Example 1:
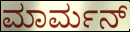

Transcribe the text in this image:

ಮಾರ್ಮನ್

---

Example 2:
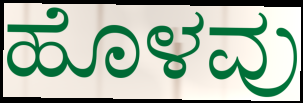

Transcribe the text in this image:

ಹೊಳವು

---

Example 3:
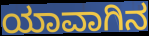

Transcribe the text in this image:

ಯಾವಾಗಿನ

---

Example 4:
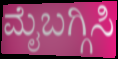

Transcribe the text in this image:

ಮೈಬಗ್ಗಿಸಿ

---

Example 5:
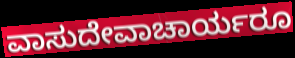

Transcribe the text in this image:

ವಾಸುದೇವಾಚಾರ್ಯರೂ